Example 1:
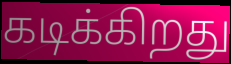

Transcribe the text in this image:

கடிக்கிறது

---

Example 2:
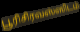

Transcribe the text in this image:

பூரிசிரவஸ்ஸிடம்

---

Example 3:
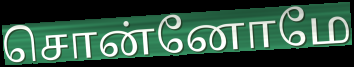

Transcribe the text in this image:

சொன்னோமே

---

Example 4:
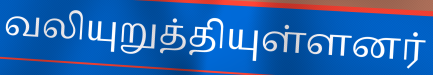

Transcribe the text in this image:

வலியுறுத்தியுள்ளனர்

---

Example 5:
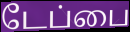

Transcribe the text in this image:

டேப்பை